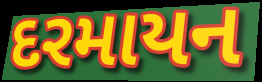
દરમાયન